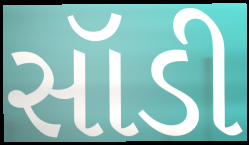
સૉડી